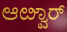
ಆೞ್ವಾರ್